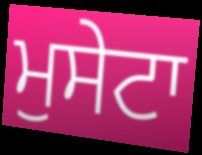
ਮੁਸੇਟਾ